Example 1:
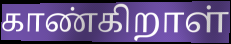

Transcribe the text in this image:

காண்கிறாள்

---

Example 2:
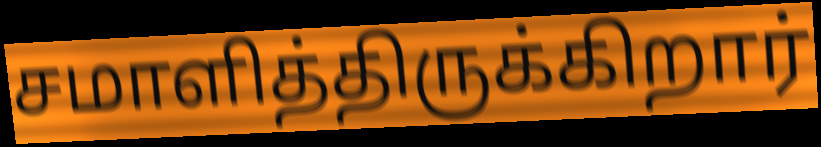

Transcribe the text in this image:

சமாளித்திருக்கிறார்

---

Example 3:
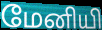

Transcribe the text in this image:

மேனியி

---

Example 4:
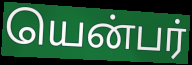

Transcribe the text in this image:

யென்பர்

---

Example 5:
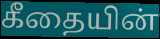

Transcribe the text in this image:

கீதையின்